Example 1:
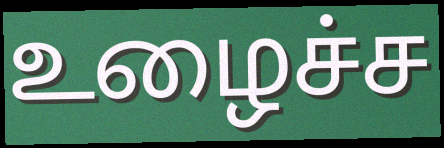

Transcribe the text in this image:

உழைச்ச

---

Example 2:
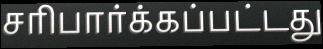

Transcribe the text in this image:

சரிபார்க்கப்பட்டது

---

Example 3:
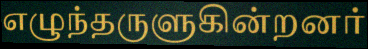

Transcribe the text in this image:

எழுந்தருளுகின்றனர்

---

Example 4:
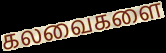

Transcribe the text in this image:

கலவைகளை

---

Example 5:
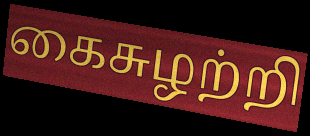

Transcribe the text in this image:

கைசுழற்றி